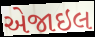
એજાઇલ